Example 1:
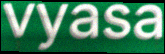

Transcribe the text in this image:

vyasa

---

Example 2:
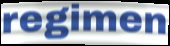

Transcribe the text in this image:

regimen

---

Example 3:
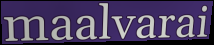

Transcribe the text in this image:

maalvarai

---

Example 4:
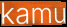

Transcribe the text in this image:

kamu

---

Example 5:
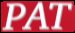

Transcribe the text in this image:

PAT